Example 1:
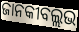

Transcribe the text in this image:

ଜାନକୀବଲ୍ଲଭ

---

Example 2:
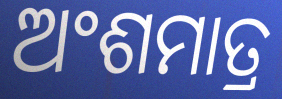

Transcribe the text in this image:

ଅଂଶମାତ୍ର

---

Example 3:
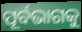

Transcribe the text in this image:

ପୂର୍ବଭାଗକୁ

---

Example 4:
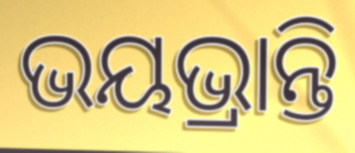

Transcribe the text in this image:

ଭୟଭ୍ରାନ୍ତି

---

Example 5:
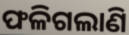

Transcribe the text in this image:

ଫଳିଗଲାଣି